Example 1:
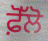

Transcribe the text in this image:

ਫ਼ੋੱਲੋ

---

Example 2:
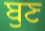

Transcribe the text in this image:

ਬੁਣ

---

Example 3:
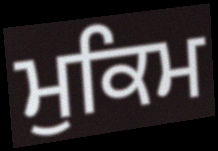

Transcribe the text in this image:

ਮੁਕਿਮ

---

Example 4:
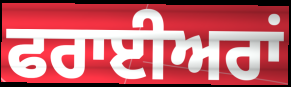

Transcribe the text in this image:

ਫਰਾਈਅਰਾਂ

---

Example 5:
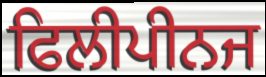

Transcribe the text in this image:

ਫਿਲੀਪੀਨਜ